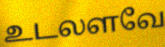
உடலளவே